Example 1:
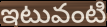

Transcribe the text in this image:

ఇటువంటి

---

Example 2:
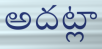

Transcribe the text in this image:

అదట్లా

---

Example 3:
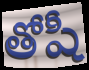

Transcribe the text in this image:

తోషీ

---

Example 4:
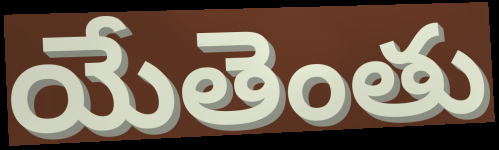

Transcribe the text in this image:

యేతెంతు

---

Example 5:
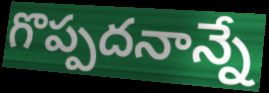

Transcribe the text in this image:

గొప్పదనాన్నే